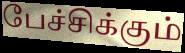
பேச்சிக்கும்